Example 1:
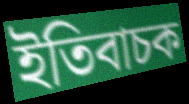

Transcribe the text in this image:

ইতিবাচক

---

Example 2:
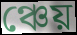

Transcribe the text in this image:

ঞ্চেয়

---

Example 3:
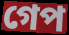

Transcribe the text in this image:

গেপ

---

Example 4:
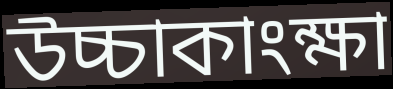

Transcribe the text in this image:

উচ্চাকাংক্ষা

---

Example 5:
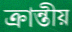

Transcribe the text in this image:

ক্ৰান্তীয়